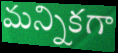
మన్నికగా